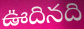
ఊదినది